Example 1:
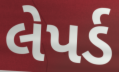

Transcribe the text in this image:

લેપર્ડ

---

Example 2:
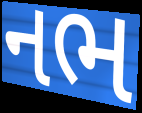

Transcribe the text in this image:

નભ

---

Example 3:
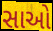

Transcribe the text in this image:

સાઓ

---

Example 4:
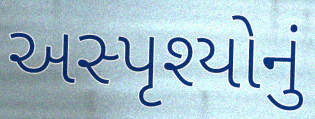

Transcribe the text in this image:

અસ્પૃશ્યોનું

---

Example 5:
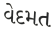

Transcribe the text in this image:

વેદમત